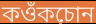
কওঁকচোন